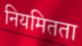
नियमितता